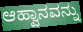
ಆಹ್ವಾನವನ್ನು